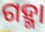
ଗହ୍ମା